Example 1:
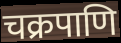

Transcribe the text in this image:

चक्रपाणि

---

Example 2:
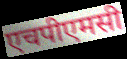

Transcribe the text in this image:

एचपीएमसी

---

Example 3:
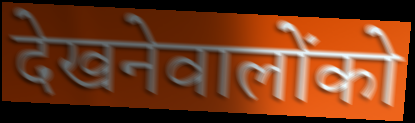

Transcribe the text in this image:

देखनेवालोंको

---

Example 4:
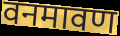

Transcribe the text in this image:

वनमावण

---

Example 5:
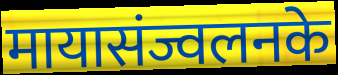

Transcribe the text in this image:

मायासंज्वलनके